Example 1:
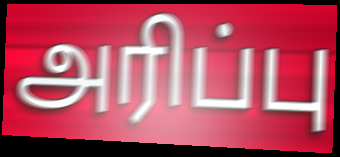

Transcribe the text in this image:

அரிப்பு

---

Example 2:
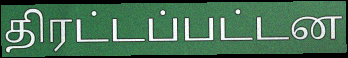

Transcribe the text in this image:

திரட்டப்பட்டன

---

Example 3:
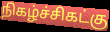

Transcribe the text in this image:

நிகழ்ச்சிகட்கு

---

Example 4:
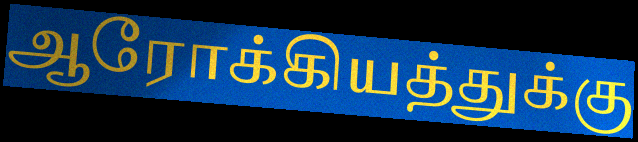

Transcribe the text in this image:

ஆரோக்கியத்துக்கு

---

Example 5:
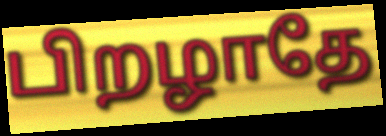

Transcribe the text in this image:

பிறழாதே